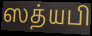
ஸத்யபி